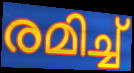
രമിച്ച്